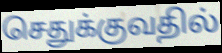
செதுக்குவதில்